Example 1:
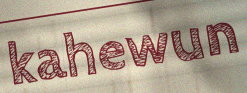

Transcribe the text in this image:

kahewun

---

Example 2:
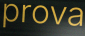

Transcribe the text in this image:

prova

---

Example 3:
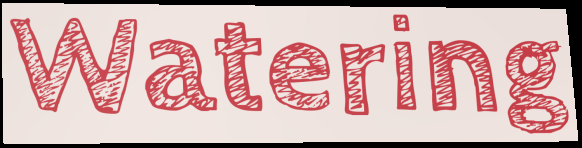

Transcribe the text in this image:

Watering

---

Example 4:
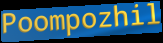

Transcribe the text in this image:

Poompozhil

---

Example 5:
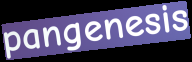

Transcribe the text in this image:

pangenesis